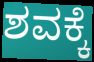
ಶವಕ್ಕೆ